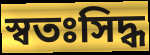
স্বতঃসিদ্ধ